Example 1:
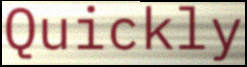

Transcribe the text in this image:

Quickly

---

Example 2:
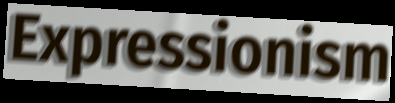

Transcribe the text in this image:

Expressionism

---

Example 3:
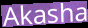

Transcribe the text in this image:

Akasha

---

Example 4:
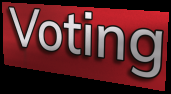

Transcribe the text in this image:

Voting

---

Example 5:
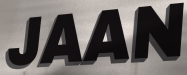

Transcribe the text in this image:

JAAN